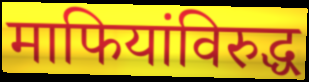
माफियांविरुद्ध